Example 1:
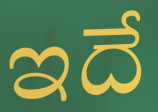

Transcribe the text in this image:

ఇదే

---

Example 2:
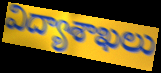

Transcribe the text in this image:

విద్యాశాఖలు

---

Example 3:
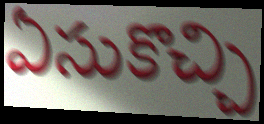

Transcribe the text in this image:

ఏసుకొచ్చి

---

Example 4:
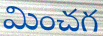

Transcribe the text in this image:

మించగ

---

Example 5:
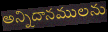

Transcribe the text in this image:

అన్నిదానములను